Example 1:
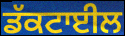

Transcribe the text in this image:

ਡੱਕਟਾਈਲ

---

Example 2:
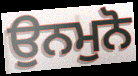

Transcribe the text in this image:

ਉਨਮੁਨੋ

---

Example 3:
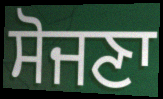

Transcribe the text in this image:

ਸੋਜਣਾ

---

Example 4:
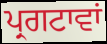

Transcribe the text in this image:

ਪ੍ਰਗਟਾਵਾਂ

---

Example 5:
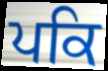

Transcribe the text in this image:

ਪਕਿ